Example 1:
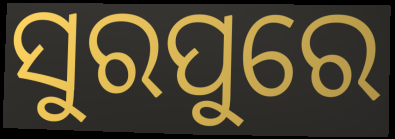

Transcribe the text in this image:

ସୁରପୁରେ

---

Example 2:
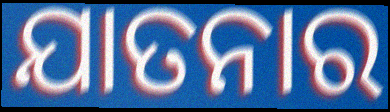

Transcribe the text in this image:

ଯାତନାର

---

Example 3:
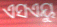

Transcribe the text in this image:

ଏସଏୟୁ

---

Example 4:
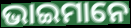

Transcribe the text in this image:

ଭାଇମାନେ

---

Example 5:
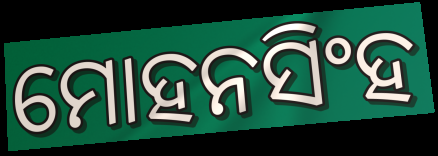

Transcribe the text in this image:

ମୋହନସିଂହ